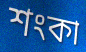
শংকা